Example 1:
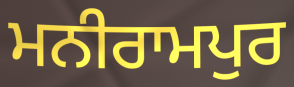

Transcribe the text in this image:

ਮਨੀਰਾਮਪੁਰ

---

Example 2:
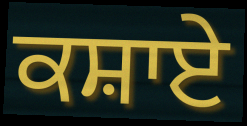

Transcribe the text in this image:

ਕਸ਼ਾਏ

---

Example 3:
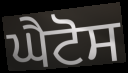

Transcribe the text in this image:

ਘੈਟੋਸ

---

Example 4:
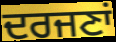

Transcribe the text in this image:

ਦਰਜਣਾਂ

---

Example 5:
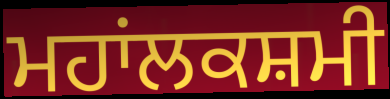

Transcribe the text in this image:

ਮਹਾਂਲਕਸ਼ਮੀ